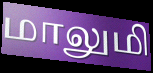
மாலுமி